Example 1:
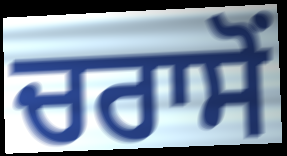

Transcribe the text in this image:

ਚਰਾਸੋਂ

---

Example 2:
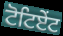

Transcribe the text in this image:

ਟੋਟਿਏਂਟ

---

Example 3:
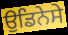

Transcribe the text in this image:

ਉਡਿਨੇਸੇ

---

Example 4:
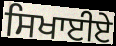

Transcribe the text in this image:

ਸਿਖਾਈਏ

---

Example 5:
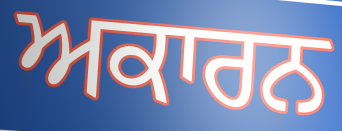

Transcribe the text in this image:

ਅਕਾਰਨ